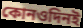
কোনওদিনই